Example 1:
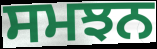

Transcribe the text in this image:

ਸਮਝਨ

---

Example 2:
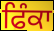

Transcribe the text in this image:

ਫਿੰਕਾ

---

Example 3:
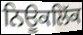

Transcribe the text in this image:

ਨਿਊਕਲਿੱਕ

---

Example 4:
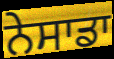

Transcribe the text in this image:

ਨੇਸਾਡਾ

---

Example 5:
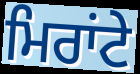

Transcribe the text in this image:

ਮਿਰਾਂਟੇ